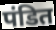
पंडित